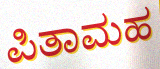
ಪಿತಾಮಹ